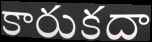
కారుకదా